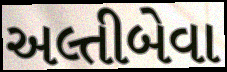
અલ્તીબેવા